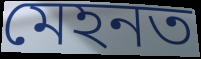
মেহনত